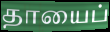
தாயைப்